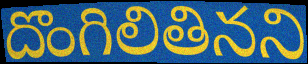
దొంగిలితినని